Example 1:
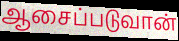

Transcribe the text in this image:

ஆசைப்படுவான்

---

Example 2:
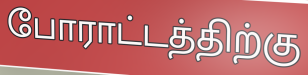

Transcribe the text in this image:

போராட்டத்திற்கு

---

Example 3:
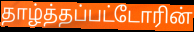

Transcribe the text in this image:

தாழ்த்தப்பட்டோரின்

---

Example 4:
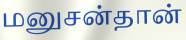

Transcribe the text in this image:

மனுசன்தான்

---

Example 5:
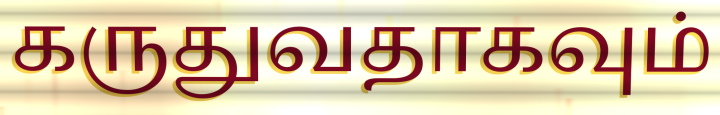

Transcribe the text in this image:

கருதுவதாகவும்